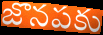
జొనపకు